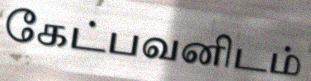
கேட்பவனிடம்